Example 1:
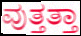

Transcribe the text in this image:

ವುತ್ತತ್ತಾ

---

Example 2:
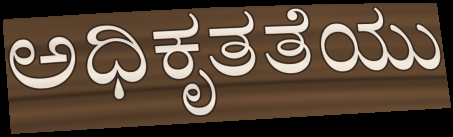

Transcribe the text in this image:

ಅಧಿಕೃತತೆಯು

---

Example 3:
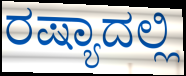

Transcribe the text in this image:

ರಷ್ಯಾದಲ್ಲಿ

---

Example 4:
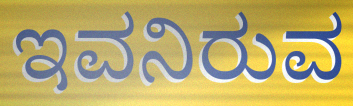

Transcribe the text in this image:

ಇವನಿರುವ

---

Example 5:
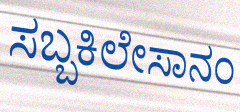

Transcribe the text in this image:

ಸಬ್ಬಕಿಲೇಸಾನಂ